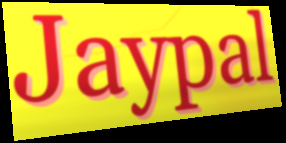
Jaypal